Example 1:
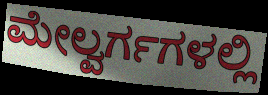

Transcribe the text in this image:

ಮೇಲ್ವರ್ಗಗಳಲ್ಲಿ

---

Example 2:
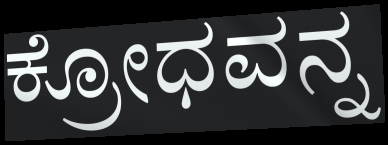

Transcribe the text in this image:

ಕ್ರೋಧವನ್ನ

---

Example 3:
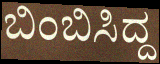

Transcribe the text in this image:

ಬಿಂಬಿಸಿದ್ದ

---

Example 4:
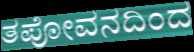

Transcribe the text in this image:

ತಪೋವನದಿಂದ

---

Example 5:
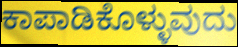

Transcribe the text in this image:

ಕಾಪಾಡಿಕೊಳ್ಳುವುದು